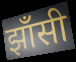
झाँसी